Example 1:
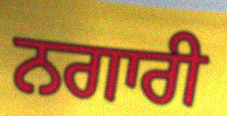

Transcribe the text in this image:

ਨਗਾਰੀ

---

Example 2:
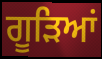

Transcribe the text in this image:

ਗੂੜਿਆਂ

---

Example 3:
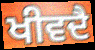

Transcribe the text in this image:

ਖੀਵਦੈ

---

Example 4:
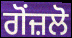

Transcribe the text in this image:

ਗੋਂਜ਼ਲੋ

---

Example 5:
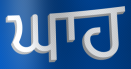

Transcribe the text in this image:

ਘਾਹ